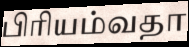
பிரியம்வதா